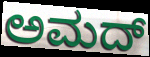
ಅಮದ್